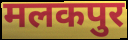
मलकपुर